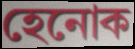
হেনোক